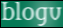
blogu